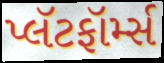
પ્લૅટફૉર્મ્સ